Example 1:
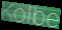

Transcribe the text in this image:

Kolbe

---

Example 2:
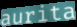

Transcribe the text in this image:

aurita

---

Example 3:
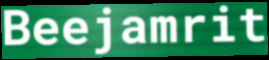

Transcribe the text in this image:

Beejamrit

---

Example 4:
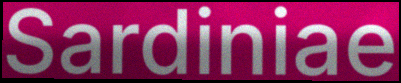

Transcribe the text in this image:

Sardiniae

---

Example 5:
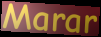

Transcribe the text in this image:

Marar